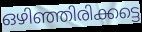
ഒഴിഞ്ഞിരിക്കട്ടെ